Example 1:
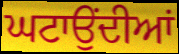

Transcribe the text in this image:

ਘਟਾਉਂਦੀਆਂ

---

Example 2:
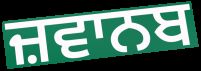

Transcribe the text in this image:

ਜ਼ਵਾਨਬ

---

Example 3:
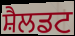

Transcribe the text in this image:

ਸ਼ੈਲਡਟ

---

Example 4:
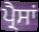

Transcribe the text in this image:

ਪ੍ਰੈਸਾਂ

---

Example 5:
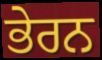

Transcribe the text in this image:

ਭੇਰਨ